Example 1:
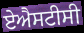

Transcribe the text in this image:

ਏਐਸਟੀਸੀ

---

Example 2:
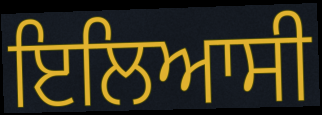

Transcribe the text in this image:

ਇਲਿਆਸੀ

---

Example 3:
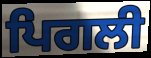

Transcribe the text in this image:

ਪਿਗਲੀ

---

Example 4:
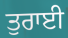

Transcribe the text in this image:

ਤੁਰਾਈ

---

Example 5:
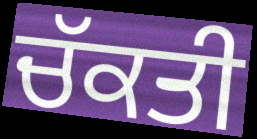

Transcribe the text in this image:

ਚੱਕਤੀ